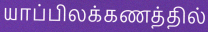
யாப்பிலக்கணத்தில்